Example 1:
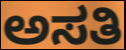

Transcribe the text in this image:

ಅಸತಿ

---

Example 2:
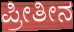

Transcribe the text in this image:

ಪ್ರೀತೀನ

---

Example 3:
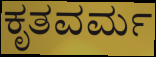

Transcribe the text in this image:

ಕೃತವರ್ಮ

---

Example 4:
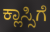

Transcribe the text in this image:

ಕ್ಲಾಸ್ಸಿಗೆ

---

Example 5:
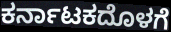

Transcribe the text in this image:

ಕರ್ನಾಟಕದೊಳಗೆ